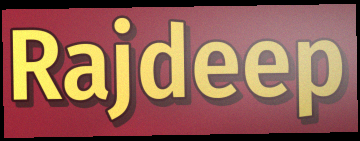
Rajdeep